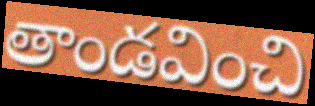
తాండవించి